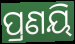
ପ୍ରଣୟି